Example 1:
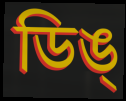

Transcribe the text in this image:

ডিঙ্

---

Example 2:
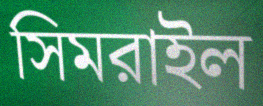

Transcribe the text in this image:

সিমরাইল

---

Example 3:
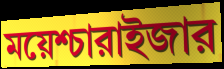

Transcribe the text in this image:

ময়েশ্চারাইজার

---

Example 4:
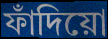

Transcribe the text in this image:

ফাঁদিয়ো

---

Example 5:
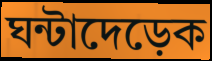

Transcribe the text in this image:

ঘন্টাদেড়েক